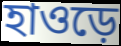
হাওড়ে